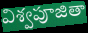
విశ్వపూజితా